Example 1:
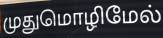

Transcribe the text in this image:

முதுமொழிமேல்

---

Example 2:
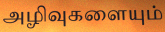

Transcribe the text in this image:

அழிவுகளையும்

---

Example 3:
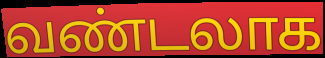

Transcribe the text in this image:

வண்டலாக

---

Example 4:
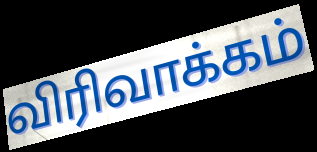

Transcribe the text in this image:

விரிவாக்கம்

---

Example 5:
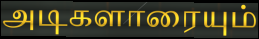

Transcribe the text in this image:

அடிகளாரையும்